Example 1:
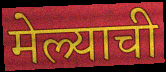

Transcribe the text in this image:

मेल्याची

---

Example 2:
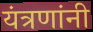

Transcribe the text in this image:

यंत्रणांनी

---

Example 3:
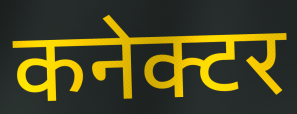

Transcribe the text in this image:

कनेक्टर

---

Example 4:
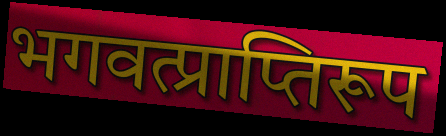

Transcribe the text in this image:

भगवत्प्राप्तिरूप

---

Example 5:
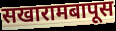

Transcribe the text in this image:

सखारामबापूस